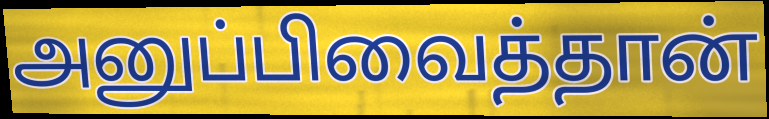
அனுப்பிவைத்தான்